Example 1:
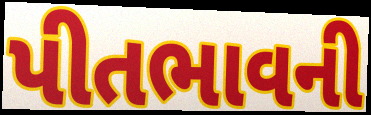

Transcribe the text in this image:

પીતભાવની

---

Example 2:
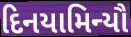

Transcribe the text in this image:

દિનયામિન્યૌ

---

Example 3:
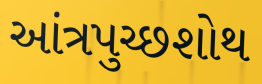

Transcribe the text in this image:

આંત્રપુચ્છશોથ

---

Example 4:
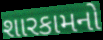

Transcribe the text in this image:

શારકામનો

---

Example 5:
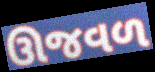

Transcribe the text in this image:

ઊજવળ